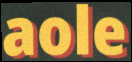
aole